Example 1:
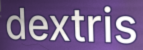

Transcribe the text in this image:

dextris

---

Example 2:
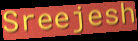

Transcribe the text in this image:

Sreejesh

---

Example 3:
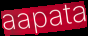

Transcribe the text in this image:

aapata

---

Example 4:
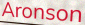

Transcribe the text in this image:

Aronson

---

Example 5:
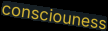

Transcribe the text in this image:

consciouness